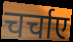
चर्चाए